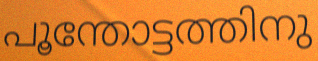
പൂന്തോട്ടത്തിനു